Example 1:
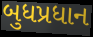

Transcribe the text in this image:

બુધપ્રધાન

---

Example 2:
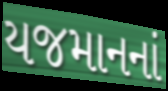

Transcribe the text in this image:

યજમાનનાં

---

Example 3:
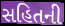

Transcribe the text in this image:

સહિતની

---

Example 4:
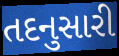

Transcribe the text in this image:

તદનુસારી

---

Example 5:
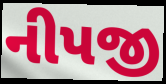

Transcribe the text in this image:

નીપજી